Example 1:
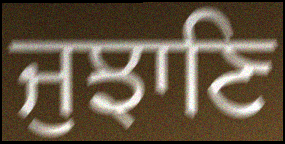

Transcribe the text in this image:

ਜੁਝਾਣਿ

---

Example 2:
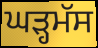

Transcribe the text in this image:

ਘੜ੍ਹਮੱਸ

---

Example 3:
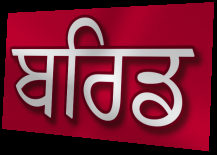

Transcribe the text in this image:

ਬਰਿਡ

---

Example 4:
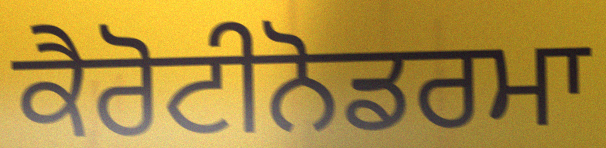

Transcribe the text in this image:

ਕੈਰੋਟੀਨੋਡਰਮਾ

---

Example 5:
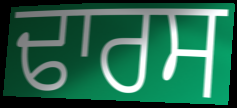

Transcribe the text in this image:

ਢਾਰਸ